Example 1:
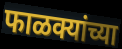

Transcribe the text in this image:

फाळक्यांच्या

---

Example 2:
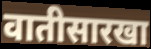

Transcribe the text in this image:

वातीसारखा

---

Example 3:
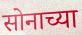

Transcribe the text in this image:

सोनाच्या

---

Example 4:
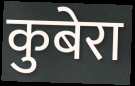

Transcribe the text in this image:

कुबेरा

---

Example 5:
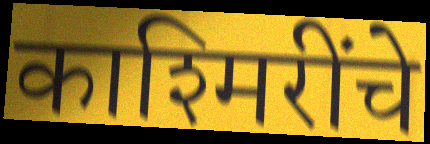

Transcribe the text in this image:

काश्मिरींचे